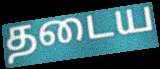
தடைய